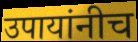
उपायांनीच